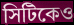
সিটিকেও